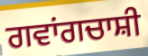
ਗਵਾਂਗਚਾਸ਼ੀ